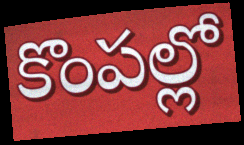
కొంపల్లో